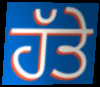
ਹੱਤੇ